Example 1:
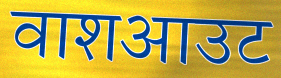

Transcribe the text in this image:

वाशआउट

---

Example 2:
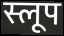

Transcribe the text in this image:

स्लूप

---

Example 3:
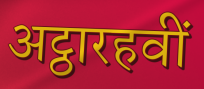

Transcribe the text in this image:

अट्ठारहवीं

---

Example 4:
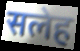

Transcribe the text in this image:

सलेह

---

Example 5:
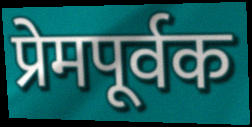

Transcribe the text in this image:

प्रेमपूर्वक